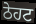
ਠੇਹਟ